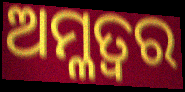
ଅମ୍ଳତ୍ଵର